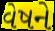
વેષને